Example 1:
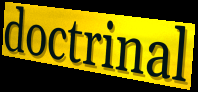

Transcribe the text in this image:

doctrinal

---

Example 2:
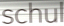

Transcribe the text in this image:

schul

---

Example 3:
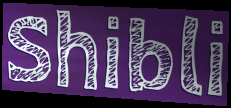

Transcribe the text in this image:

Shibli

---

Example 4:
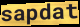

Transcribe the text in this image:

sapdat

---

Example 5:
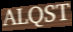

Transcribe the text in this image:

ALQST